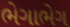
ભેગાભેગ